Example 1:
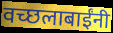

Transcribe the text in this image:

वच्छलाबाईंनी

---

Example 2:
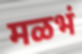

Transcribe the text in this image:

मळभं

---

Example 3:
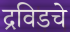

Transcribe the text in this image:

द्रविडचे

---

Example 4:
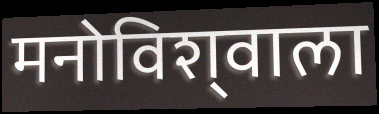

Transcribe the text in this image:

मनोविश्वाला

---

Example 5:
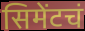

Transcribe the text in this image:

सिमेंटचं